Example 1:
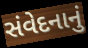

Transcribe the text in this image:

સંવેદનાનું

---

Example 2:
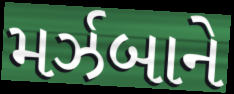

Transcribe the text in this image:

મર્ઝબાને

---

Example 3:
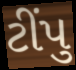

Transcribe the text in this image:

ટીંપુ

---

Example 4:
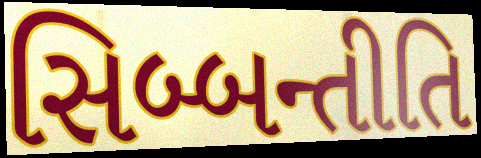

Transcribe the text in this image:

સિબ્બન્તીતિ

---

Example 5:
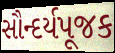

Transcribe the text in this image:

સૌન્દર્યપૂજક